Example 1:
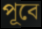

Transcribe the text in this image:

পূবে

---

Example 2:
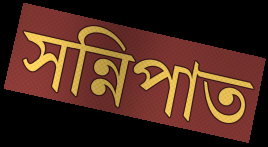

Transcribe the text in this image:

সন্নিপাত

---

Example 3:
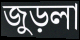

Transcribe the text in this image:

জুড়লা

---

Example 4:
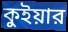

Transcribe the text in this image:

কুইয়ার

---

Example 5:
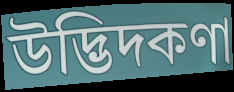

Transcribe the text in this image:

উদ্ভিদকণা